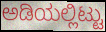
ಅಡಿಯಲ್ಲಿಟ್ಟು